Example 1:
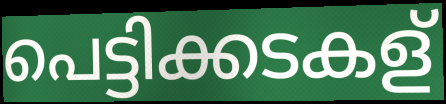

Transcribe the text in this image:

പെട്ടിക്കടകള്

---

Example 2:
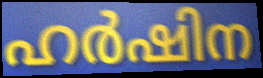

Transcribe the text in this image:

ഹർഷിന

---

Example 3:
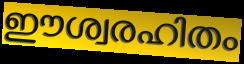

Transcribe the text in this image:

ഈശ്വരഹിതം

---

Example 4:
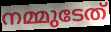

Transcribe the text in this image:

നമ്മുടേത്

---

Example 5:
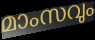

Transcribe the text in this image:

മാംസവും